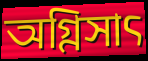
অগ্নিসাৎ